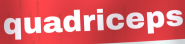
quadriceps